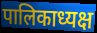
पालिकाध्यक्ष